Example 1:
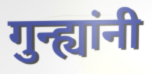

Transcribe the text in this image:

गुन्ह्यांनी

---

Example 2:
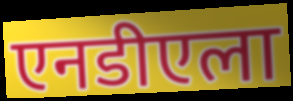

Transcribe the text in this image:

एनडीएला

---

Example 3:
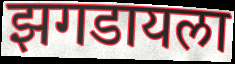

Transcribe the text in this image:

झगडायला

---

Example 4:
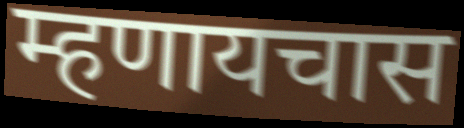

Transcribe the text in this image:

म्हणायचास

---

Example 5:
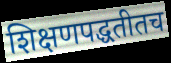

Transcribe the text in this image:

शिक्षणपद्धतीतच